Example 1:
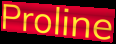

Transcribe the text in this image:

Proline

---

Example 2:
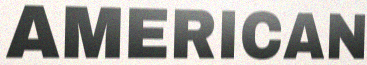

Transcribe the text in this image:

AMERICAN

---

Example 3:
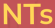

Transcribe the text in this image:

NTs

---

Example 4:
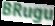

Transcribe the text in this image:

BRugu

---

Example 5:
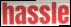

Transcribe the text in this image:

hassle